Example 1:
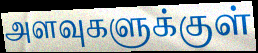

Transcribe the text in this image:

அளவுகளுக்குள்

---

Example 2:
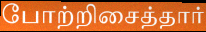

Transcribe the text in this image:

போற்றிசைத்தார்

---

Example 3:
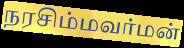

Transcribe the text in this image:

நரசிம்மவர்மன்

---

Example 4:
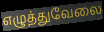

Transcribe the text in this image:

எழுத்துவேலை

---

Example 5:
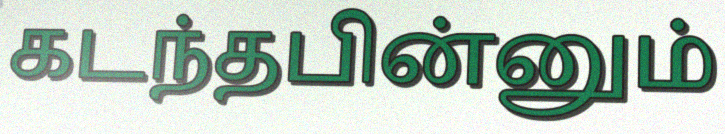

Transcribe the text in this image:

கடந்தபின்னும்